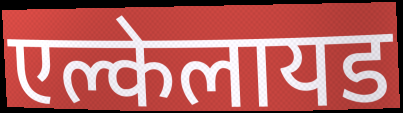
एल्केलायड